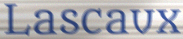
Lascaux